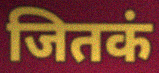
जितकं